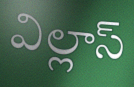
విల్లాస్